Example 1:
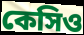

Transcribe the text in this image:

কেসিও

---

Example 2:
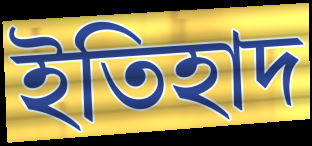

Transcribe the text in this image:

ইতিহাদ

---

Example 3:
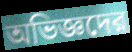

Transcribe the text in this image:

অভিজ্ঞদের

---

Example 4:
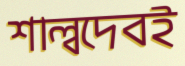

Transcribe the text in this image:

শাল্বদেবই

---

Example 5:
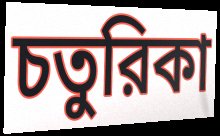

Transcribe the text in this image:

চতুরিকা